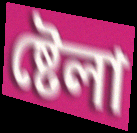
ষ্টেলা